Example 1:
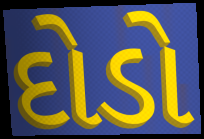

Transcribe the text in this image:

દોડો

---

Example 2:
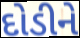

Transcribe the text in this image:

દોડીને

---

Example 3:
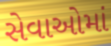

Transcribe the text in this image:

સેવાઓમાં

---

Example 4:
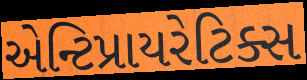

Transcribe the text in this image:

એન્ટિપ્રાયરેટિક્સ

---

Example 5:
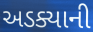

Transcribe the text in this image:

અડક્યાની